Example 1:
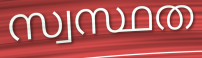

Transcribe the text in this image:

സ്വസ്ഥത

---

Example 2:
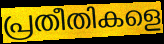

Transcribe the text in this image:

പ്രതീതികളെ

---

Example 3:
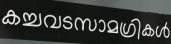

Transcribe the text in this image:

കച്ചവടസാമഗ്രികൾ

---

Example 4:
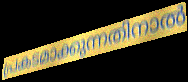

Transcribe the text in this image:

പ്രകടമാക്കുന്നതിനാൽ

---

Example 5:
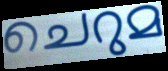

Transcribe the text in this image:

ചെറുമ